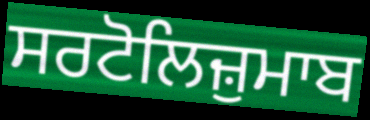
ਸਰਟੋਲਿਜ਼ੁਮਾਬ